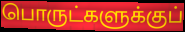
பொருட்களுக்குப்